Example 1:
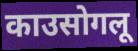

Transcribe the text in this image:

काउसोगलू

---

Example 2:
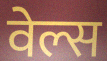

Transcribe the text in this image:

वेल्स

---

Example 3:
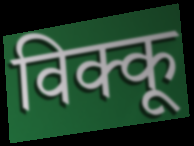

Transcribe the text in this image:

विक्कू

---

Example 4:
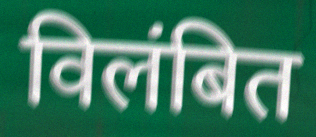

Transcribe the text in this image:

विलंबित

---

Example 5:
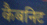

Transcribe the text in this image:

कैबनिट